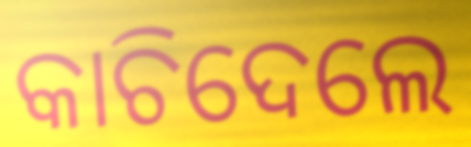
କାଚିଦେଲେ